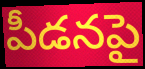
పీడనపై